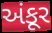
અંકૂર